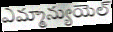
ఎమ్మాన్యుయెల్